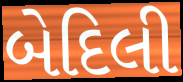
બેદિલી